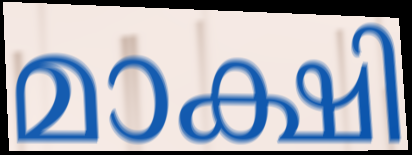
മാക്ഷി